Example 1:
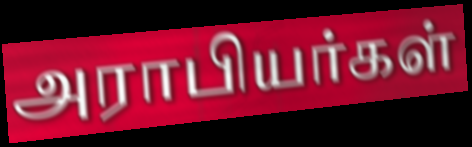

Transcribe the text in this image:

அராபியர்கள்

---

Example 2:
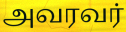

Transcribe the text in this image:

அவரவர்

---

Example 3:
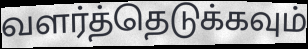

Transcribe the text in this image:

வளர்த்தெடுக்கவும்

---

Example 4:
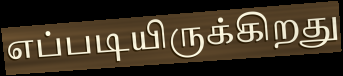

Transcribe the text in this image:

எப்படியிருக்கிறது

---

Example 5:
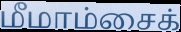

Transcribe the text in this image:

மீமாம்சைக்